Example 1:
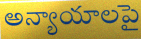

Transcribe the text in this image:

అన్యాయాలపై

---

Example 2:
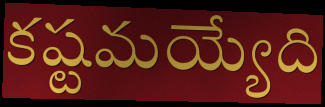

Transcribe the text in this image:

కష్టమయ్యేది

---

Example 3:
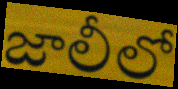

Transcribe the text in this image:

జాలీలో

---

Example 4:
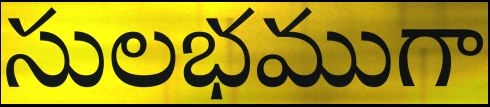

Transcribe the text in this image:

సులభముగా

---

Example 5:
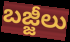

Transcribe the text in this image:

బజ్జీలు